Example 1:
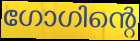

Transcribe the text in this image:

ഗോഗിന്റെ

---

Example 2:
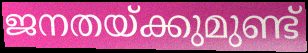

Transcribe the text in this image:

ജനതയ്ക്കുമുണ്ട്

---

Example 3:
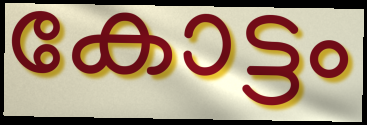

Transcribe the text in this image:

കോട്ടം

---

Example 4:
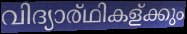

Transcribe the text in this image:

വിദ്യാര്ഥികള്ക്കും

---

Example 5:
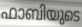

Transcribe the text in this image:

ഫാബിയുടെ